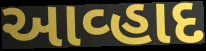
આવ્હાદ